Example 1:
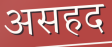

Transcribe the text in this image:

असहद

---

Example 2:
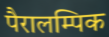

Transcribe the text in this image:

पैरालम्पिक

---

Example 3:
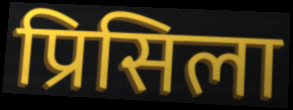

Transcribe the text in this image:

प्रिसिला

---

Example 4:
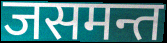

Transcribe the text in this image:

जसमन्त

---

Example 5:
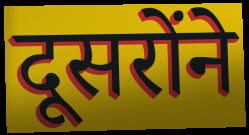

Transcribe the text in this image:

दूसरोंने